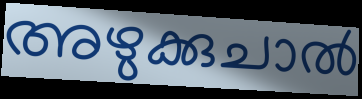
അഴുക്കുചാൽ